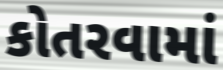
કોતરવામાં